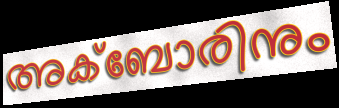
അക്ബോരിനും